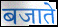
बजाते